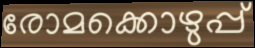
രോമക്കൊഴുപ്പ്